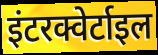
इंटरक्वेर्टाइल